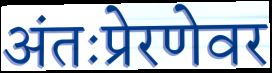
अंतःप्रेरणेवर